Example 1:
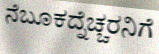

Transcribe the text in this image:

ನೆಬೂಕದ್ನೆಚ್ಚರನಿಗೆ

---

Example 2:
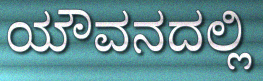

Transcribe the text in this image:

ಯೌವನದಲ್ಲಿ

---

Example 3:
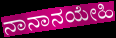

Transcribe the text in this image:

ನಾನಾನಯೇಹಿ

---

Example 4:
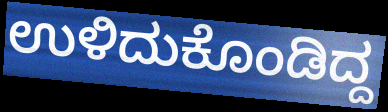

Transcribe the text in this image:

ಉಳಿದುಕೊಂಡಿದ್ದ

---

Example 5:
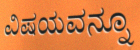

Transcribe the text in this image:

ವಿಷಯವನ್ನೂ